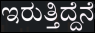
ಇರುತ್ತಿದ್ದೆನೆ